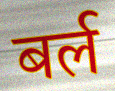
बर्ल